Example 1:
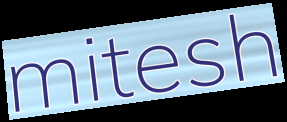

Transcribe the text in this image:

mitesh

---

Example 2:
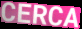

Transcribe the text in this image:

CERCA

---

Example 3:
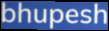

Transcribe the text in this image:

bhupesh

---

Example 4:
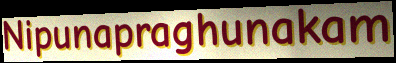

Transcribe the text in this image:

Nipunapraghunakam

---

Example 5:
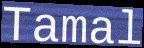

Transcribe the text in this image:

Tamal